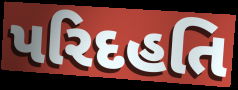
પરિદહતિ